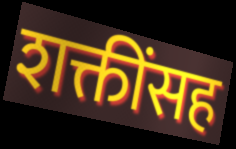
शक्तींसह